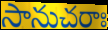
సానుచరాః